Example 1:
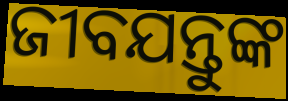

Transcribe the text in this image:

ଜୀବଯନ୍ତୁଙ୍କ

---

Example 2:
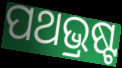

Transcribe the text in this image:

ପଥଭ୍ରଷ୍ଟ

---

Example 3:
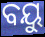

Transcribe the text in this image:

ବୟୁ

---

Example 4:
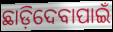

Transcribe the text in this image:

ଛାଡ଼ିଦେବାପାଇଁ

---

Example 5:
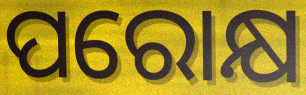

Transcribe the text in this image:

ପରୋକ୍ଷ